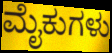
ಮೈಕುಗಳು